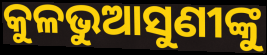
କୁଳଭୁଆସୁଣୀଙ୍କୁ